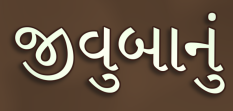
જીવુબાનું